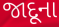
જાદૂના